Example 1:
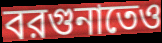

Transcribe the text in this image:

বরগুনাতেও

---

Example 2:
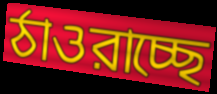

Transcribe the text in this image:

ঠাওরাচ্ছে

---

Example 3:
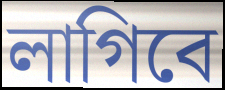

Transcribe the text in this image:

লাগিবে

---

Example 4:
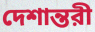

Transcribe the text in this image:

দেশান্তরী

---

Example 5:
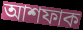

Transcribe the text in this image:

আশফাক